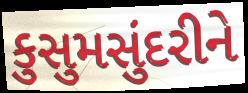
કુસુમસુંદરીને